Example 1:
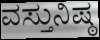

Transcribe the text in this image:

ವಸ್ತುನಿಷ್ಠ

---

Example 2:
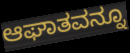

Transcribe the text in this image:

ಆಘಾತವನ್ನೂ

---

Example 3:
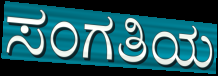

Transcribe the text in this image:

ಸಂಗತಿಯ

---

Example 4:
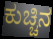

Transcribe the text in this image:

ಕುಚ್ಚಿನ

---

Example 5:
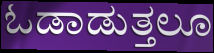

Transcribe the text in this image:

ಓಡಾಡುತ್ತಲೂ